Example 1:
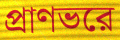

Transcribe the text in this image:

প্রাণভরে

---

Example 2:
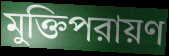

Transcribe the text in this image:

মুক্তিপরায়ণ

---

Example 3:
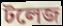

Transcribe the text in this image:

টলেজ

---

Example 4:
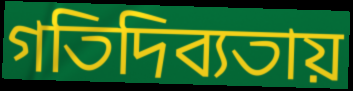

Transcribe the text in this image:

গতিদিব্যতায়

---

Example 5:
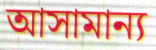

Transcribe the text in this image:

আসামান্য